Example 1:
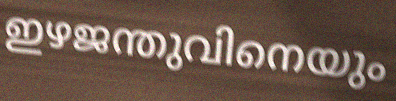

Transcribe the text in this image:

ഇഴജന്തുവിനെയും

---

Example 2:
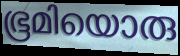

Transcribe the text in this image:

ഭൂമിയൊരു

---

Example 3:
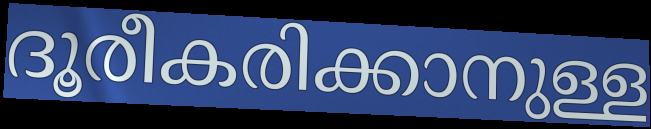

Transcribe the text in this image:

ദൂരീകരിക്കാനുള്ള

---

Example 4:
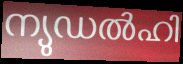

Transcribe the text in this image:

ന്യുഡൽഹി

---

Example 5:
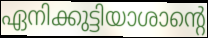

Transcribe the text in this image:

ഏനിക്കുട്ടിയാശാന്റെ